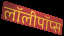
लॉलीपॉप्स